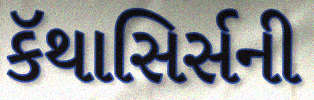
કૅથાસિર્સની